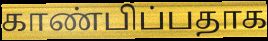
காண்பிப்பதாக